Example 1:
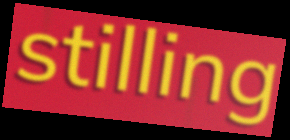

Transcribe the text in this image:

stilling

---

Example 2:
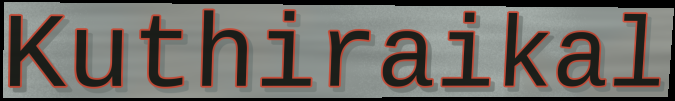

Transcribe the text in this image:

Kuthiraikal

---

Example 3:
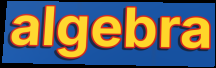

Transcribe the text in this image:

algebra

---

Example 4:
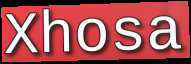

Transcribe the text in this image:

Xhosa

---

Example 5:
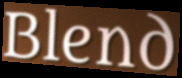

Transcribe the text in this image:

Blend